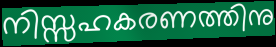
നിസ്സഹകരണത്തിനു